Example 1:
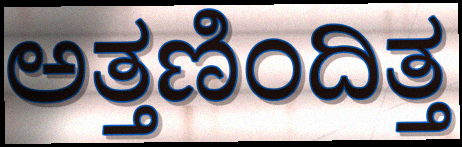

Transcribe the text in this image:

ಅತ್ತಣಿಂದಿತ್ತ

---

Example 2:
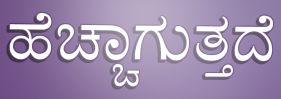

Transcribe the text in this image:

ಹೆಚ್ಚಾಗುತ್ತದೆ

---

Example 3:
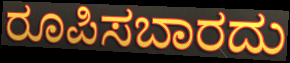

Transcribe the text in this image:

ರೂಪಿಸಬಾರದು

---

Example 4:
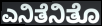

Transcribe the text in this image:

ಎನಿತೆನಿತೊ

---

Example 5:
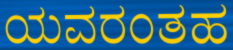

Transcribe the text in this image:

ಯವರಂತಹ